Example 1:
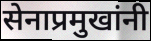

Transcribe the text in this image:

सेनाप्रमुखांनी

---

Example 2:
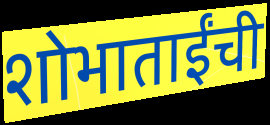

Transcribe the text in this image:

शोभाताईंची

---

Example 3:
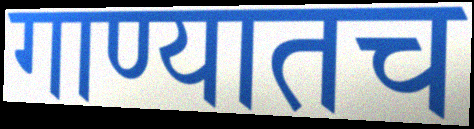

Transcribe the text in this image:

गाण्यातच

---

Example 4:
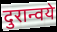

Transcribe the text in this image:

दुरान्वये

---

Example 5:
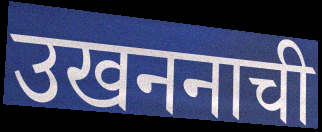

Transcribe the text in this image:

उखननाची